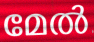
മേൽ